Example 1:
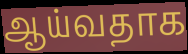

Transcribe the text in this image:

ஆய்வதாக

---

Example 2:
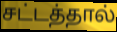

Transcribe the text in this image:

சட்டத்தால்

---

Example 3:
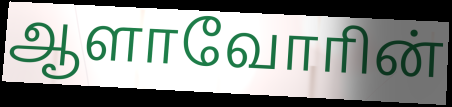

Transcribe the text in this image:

ஆளாவோரின்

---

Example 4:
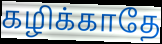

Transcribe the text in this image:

கழிக்காதே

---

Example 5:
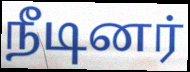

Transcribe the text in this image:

நீடினர்